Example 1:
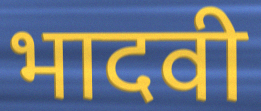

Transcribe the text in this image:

भादवी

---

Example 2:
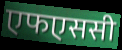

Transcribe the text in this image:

एफएससी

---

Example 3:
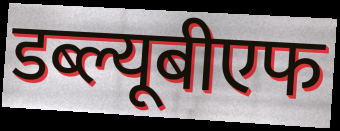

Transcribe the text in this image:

डब्ल्यूबीएफ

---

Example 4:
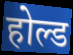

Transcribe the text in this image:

होल्ड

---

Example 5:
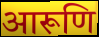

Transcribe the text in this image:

आरूणि